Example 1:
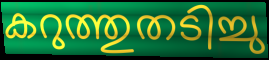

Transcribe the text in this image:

കറുത്തുതടിച്ചു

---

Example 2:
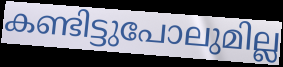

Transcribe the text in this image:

കണ്ടിട്ടുപോലുമില്ല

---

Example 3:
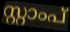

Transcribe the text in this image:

സ്റ്റാംപ്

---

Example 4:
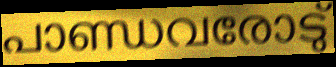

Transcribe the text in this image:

പാണ്ഡവരോടു്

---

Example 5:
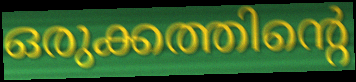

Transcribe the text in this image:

ഒരുക്കത്തിന്റെ